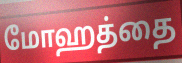
மோஹத்தை